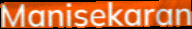
Manisekaran